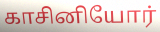
காசினியோர்